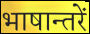
भाषान्तरें